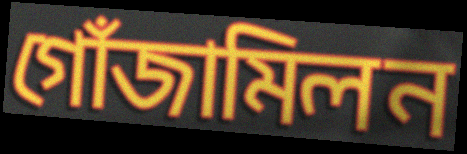
গোঁজামিলন